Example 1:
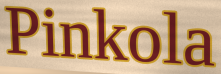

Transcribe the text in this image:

Pinkola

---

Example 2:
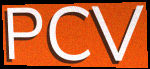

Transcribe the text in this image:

PCV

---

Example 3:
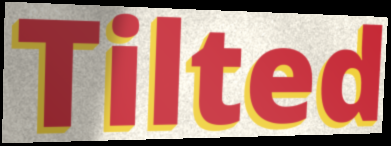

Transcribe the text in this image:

Tilted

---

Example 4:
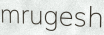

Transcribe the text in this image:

mrugesh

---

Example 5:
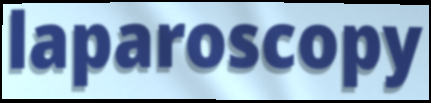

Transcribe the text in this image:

laparoscopy